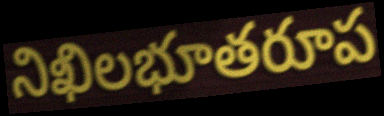
నిఖిలభూతరూప